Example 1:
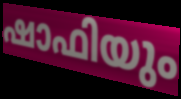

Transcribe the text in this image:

ഷാഫിയും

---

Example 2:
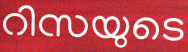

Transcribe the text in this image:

റിസയുടെ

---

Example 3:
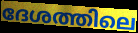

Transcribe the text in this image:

ദേശത്തിലെ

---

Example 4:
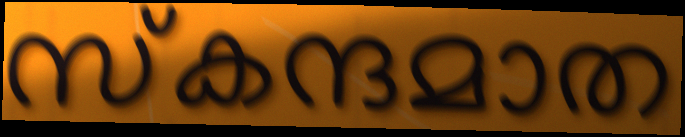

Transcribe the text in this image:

സ്കന്ദമാത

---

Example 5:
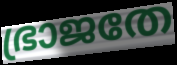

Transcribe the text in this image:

ഭ്രാജതേ